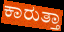
ಕಾರುತ್ತಾ